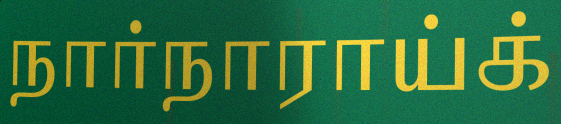
நார்நாராய்க்